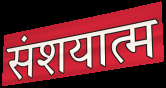
संशयात्म